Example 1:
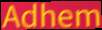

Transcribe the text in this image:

Adhem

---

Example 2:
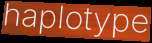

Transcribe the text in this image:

haplotype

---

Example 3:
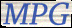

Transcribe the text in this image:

MPG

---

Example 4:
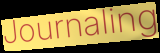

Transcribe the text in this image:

Journaling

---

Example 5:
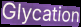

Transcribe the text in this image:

Glycation